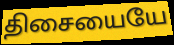
திசையையே